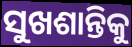
ସୁଖଶାନ୍ତିକୁ